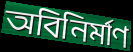
অবিনির্মাণ